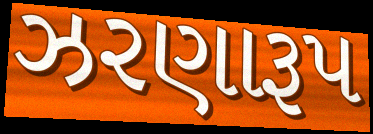
ઝરણારૂપ